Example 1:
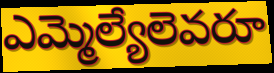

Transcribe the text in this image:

ఎమ్మెల్యేలెవరూ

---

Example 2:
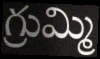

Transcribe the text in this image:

గ్రుమ్మి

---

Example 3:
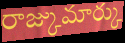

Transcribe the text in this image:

రాజ్కుమార్కు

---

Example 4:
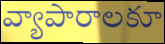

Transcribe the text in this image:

వ్యాపారాలకూ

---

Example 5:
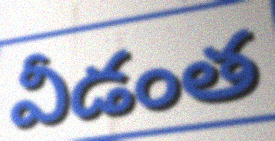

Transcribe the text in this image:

వీడంత